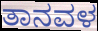
ತಾನವಳ